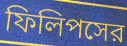
ফিলিপসের